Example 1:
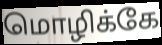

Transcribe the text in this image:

மொழிக்கே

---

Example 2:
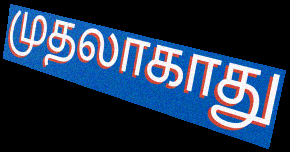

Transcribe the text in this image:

முதலாகாது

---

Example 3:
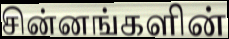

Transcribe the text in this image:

சின்னங்களின்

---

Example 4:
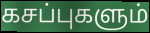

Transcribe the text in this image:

கசப்புகளும்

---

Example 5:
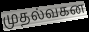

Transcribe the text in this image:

முதல்வகன